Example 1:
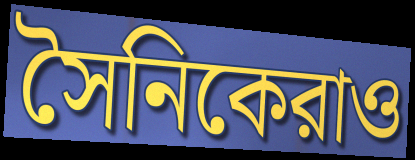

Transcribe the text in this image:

সৈনিকেরাও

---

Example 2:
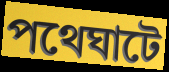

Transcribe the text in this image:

পথেঘাটে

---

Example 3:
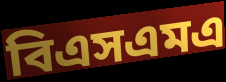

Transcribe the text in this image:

বিএসএমএ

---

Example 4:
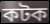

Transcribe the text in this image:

কটক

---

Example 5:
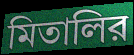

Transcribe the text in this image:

মিতালির